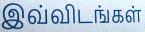
இவ்விடங்கள்